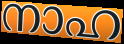
നാഹ